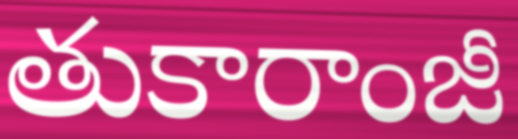
తుకారాంజీ